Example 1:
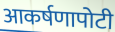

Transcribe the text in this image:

आकर्षणापोटी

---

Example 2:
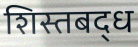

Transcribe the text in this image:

शिस्तबद्ध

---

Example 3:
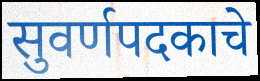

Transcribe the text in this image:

सुवर्णपदकाचे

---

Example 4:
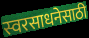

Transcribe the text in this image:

स्वरसाधनेसाठी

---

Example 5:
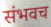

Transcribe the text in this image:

संभवच